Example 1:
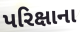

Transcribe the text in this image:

પરિક્ષાના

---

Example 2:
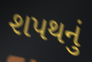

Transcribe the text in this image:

શપથનું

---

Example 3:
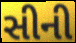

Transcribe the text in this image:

સીની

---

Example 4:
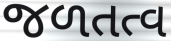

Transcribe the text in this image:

જળતત્વ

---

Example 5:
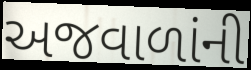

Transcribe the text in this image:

અજવાળાંની